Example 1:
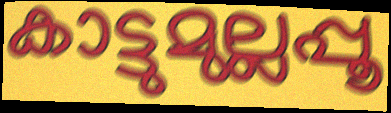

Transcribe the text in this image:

കാട്ടുമുല്ലപ്പൂ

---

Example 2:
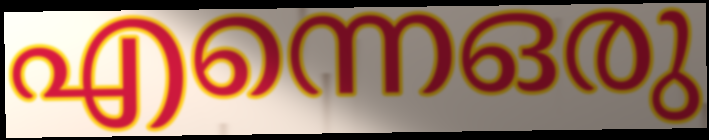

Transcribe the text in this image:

എന്നെഒരു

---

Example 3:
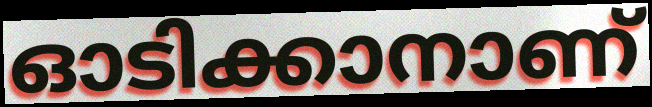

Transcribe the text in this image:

ഓടിക്കാനാണ്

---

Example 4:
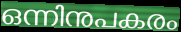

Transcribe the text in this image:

ഒന്നിനുപകരം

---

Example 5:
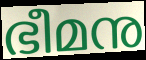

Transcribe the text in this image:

ഭീമനു